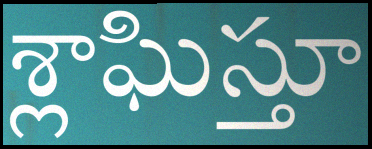
శ్లాఘిస్తూ